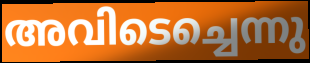
അവിടെച്ചെന്നു